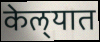
केल्यात